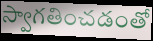
స్వాగతించడంతో